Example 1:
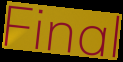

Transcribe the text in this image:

Final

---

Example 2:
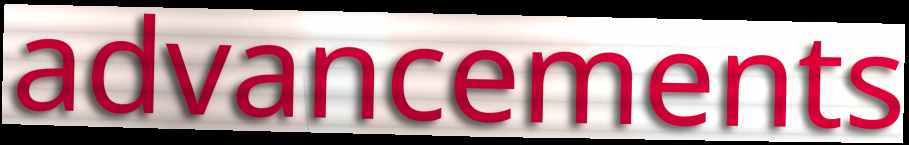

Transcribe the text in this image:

advancements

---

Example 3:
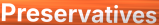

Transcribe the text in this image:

Preservatives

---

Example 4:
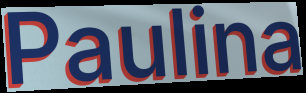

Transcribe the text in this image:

Paulina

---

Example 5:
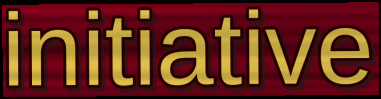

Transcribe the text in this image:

initiative